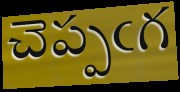
చెప్పఁగ